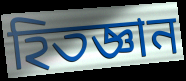
হিতজ্ঞান